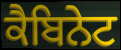
ਕੈਬਿਨੇਟ